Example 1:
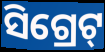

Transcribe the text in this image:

ସିଗ୍ରେଟ୍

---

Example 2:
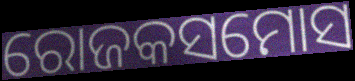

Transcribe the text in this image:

ରୋଜକସମୋସ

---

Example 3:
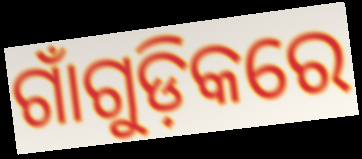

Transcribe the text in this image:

ଗାଁଗୁଡ଼ିକରେ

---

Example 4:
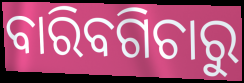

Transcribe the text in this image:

ବାରିବଗିଚାରୁ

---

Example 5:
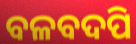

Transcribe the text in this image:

ବଳବଦପି